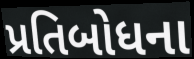
પ્રતિબોધના